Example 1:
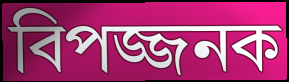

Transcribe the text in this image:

বিপজ্জনক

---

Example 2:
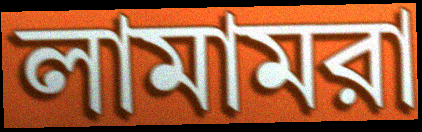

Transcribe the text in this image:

লামামরা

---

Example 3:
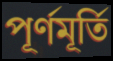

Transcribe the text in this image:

পূর্ণমূর্তি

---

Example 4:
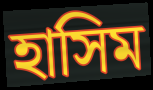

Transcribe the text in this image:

হাসিম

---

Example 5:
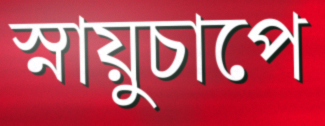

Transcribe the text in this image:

স্নায়ুচাপে